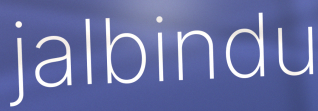
jalbindu